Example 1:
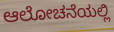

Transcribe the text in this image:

ಆಲೋಚನೆಯಲ್ಲಿ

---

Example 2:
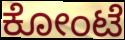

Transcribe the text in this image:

ಕೋಂಟೆ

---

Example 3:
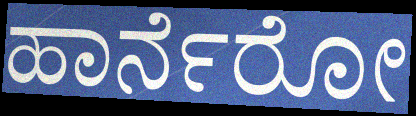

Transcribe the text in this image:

ಹಾರ್ನೆರೋ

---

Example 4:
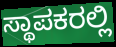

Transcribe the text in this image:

ಸ್ಥಾಪಕರಲ್ಲಿ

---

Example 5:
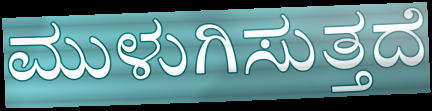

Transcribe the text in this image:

ಮುಳುಗಿಸುತ್ತದೆ